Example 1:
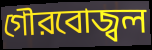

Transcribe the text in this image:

গৌরবোজ্বল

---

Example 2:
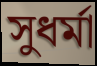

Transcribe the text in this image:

সুধর্মা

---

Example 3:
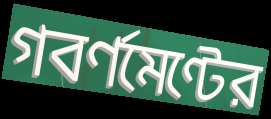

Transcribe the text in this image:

গবর্ণমেণ্টের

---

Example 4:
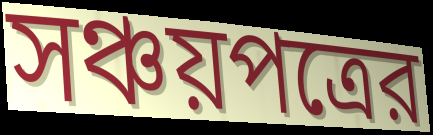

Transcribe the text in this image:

সঞ্চয়পত্রের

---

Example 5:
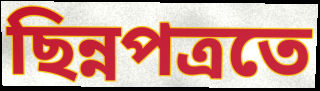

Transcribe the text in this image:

ছিন্নপত্রতে